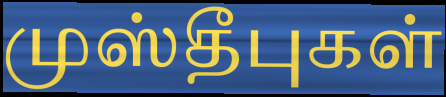
முஸ்தீபுகள்